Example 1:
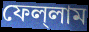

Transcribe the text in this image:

ফেল্‌লাম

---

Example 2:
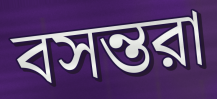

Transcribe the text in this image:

বসন্তরা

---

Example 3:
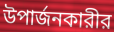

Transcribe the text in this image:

উপার্জনকারীর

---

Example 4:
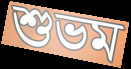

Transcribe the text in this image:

শুভম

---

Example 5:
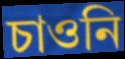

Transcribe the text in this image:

চাওনি